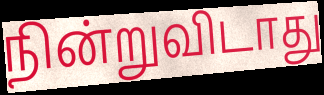
நின்றுவிடாது